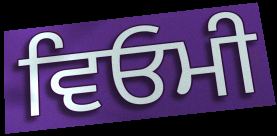
ਵਿਓਮੀ